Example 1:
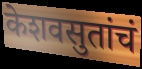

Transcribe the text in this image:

केशवसुतांचं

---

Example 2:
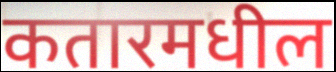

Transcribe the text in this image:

कतारमधील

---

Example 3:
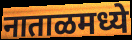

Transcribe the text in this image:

नाताळमध्ये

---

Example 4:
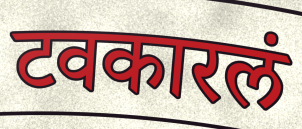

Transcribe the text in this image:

टवकारलं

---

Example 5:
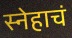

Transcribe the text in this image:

स्नेहाचं